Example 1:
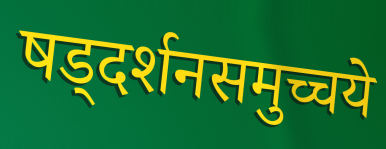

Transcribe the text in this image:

षड्दर्शनसमुच्चये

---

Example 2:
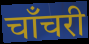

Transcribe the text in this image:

चाँचरी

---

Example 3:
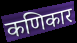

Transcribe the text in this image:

कणिकार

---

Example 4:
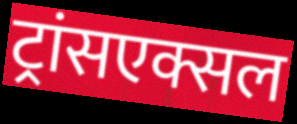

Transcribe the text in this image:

ट्रांसएक्सल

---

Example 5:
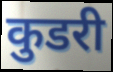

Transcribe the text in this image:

कुडरी